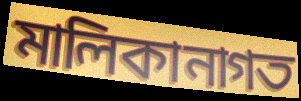
মালিকানাগত